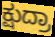
ಕ್ಷುದ್ರಾ